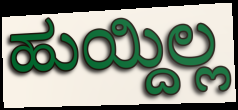
ಹುಯ್ದಿಲ್ಲ